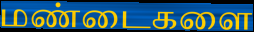
மண்டைகளை